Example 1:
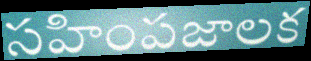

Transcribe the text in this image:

సహింపజాలక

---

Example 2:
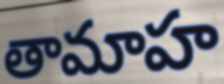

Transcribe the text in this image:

తామాహ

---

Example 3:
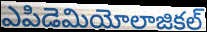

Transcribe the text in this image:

ఎపిడెమియోలాజికల్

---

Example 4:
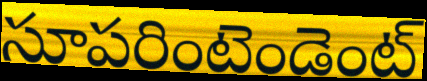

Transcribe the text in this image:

సూపరింటెండెంట్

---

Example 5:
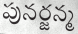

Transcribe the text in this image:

పునర్జన్మ